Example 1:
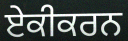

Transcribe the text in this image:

ਏਕੀਕਰਨ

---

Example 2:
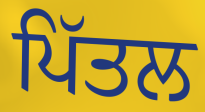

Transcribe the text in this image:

ਪਿੱਤਲ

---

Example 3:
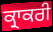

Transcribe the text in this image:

ਕ੍ਰਾਕਰੀ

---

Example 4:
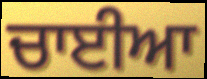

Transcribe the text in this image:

ਚਾਈਆ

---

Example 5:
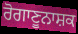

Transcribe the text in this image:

ਰੋਗਾਣੂਨਾਸ਼ਕ